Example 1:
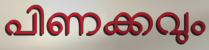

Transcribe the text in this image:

പിണക്കവും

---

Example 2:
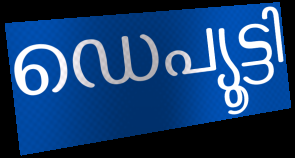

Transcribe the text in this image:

ഡെപ്യൂട്ടി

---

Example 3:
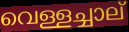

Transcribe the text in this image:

വെള്ളച്ചാല്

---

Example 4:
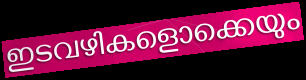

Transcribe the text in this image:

ഇടവഴികളൊക്കെയും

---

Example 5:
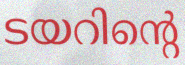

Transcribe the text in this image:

ടയറിന്റെ